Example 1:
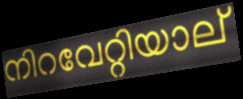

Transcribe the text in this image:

നിറവേറ്റിയാല്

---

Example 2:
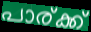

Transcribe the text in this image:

പാര്ക്ക്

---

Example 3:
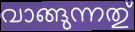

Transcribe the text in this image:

വാങ്ങുന്നതു്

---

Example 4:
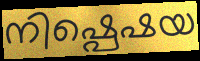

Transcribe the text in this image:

നിഷ്പെഷയ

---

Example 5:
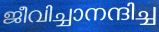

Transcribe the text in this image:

ജീവിച്ചാനന്ദിച്ച